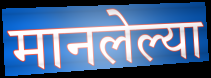
मानलेल्या